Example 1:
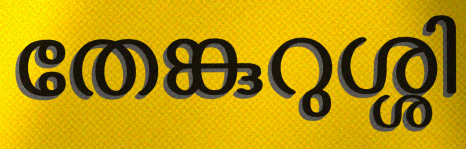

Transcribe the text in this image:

തേങ്കുറുശ്ശി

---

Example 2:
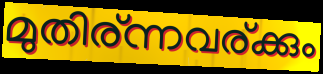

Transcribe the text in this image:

മുതിര്ന്നവര്ക്കും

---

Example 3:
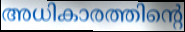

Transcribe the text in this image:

അധികാരത്തിന്റെ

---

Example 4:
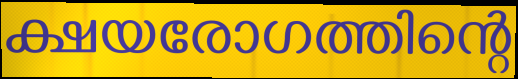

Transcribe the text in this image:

ക്ഷയരോഗത്തിന്റെ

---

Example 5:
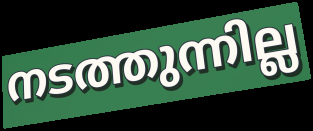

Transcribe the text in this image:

നടത്തുന്നില്ല